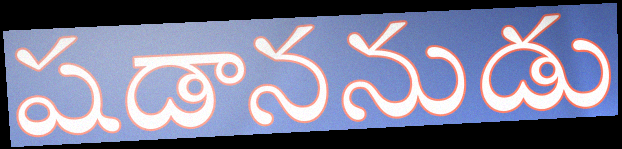
షడాననుడు